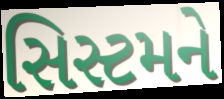
સિસ્ટમને